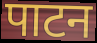
पाटन